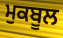
ਮੁਕਬੂਲ